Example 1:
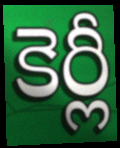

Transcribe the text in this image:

కెర్లీ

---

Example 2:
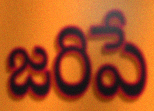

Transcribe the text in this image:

జరిపే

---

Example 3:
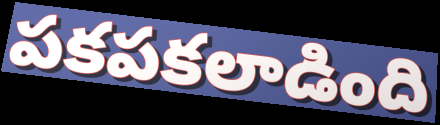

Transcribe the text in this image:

పకపకలాడింది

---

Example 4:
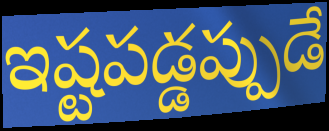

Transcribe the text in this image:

ఇష్టపడ్డప్పుడే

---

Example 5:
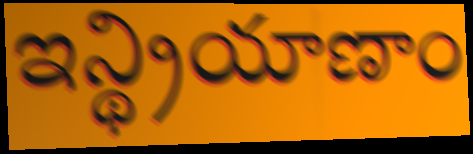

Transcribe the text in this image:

ఇన్థ్రియాణాం